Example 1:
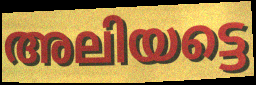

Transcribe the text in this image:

അലിയട്ടെ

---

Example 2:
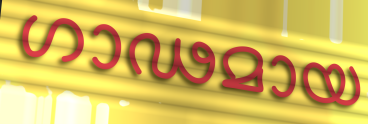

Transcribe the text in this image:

ഗാഢമായ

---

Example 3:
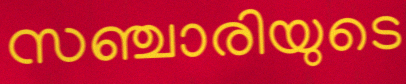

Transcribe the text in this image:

സഞ്ചാരിയുടെ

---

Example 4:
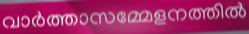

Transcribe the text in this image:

വാർത്താസമ്മേളനത്തിൽ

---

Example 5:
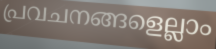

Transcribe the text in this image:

പ്രവചനങ്ങളെല്ലാം